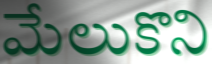
మేలుకొని